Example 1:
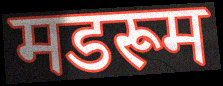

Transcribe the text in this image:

मडरूम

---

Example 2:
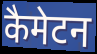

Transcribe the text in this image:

कैमेटन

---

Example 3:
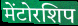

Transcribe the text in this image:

मेंटोरशिप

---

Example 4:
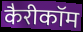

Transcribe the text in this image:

कैरीकॉम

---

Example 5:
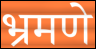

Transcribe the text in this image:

भ्रमणे